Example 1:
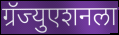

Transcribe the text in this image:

ग्रॅज्युएशनला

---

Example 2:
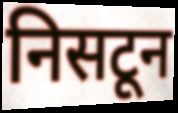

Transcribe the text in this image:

निसटून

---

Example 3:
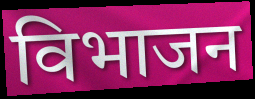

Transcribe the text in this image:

विभाजन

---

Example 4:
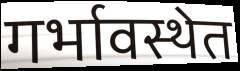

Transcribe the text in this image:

गर्भावस्थेत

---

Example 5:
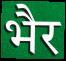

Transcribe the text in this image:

भैर